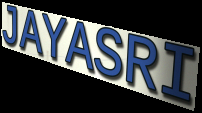
JAYASRI